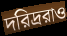
দরিদ্ররাও